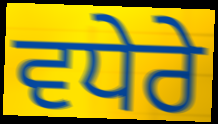
ਵਧੇਰੇ